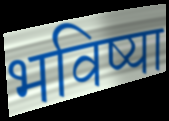
भविष्या